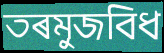
তৰমুজবিধ